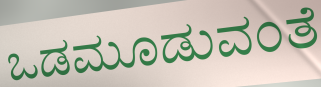
ಒಡಮೂಡುವಂತೆ